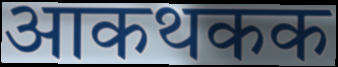
आकथकक